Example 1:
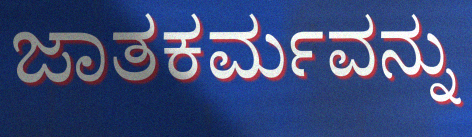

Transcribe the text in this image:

ಜಾತಕರ್ಮವನ್ನು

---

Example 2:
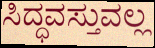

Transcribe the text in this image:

ಸಿದ್ಧವಸ್ತುವಲ್ಲ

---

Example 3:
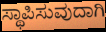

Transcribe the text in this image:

ಸ್ಥಾಪಿಸುವುದಾಗಿ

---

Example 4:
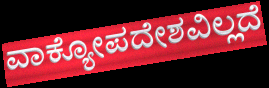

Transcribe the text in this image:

ವಾಕ್ಯೋಪದೇಶವಿಲ್ಲದೆ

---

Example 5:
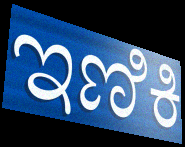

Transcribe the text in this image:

ಇಣಿಕಿ